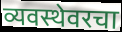
व्यवस्थेवरचा